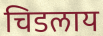
चिडलाय